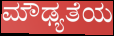
ಮೌಢ್ಯತೆಯ